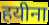
हयीना